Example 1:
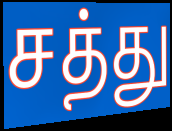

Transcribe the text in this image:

சத்து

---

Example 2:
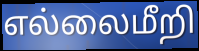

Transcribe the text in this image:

எல்லைமீறி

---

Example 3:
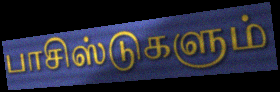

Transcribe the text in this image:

பாசிஸ்டுகளும்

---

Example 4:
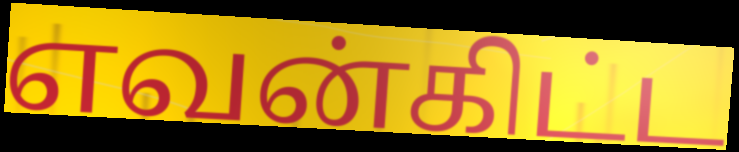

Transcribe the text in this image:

எவன்கிட்ட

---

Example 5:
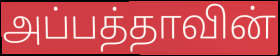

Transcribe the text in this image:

அப்பத்தாவின்